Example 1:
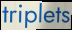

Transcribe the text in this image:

triplets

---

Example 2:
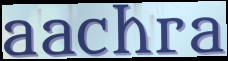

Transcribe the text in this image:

aachra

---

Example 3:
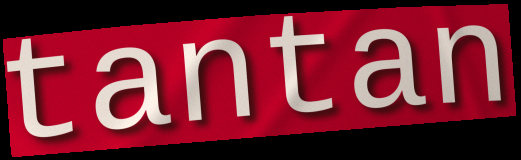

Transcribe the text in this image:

tantan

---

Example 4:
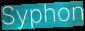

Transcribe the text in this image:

Syphon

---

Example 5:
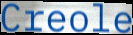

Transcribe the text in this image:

Creole